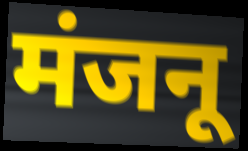
मंजनू